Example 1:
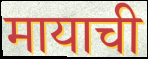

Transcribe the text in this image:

मायाची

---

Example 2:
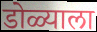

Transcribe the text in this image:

डोळ्याला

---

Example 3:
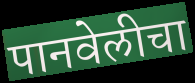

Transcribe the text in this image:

पानवेलीचा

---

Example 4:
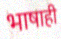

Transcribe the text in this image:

भाषाही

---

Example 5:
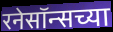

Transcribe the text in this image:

रनेसॉन्सच्या